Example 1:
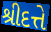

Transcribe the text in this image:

શ્રીદત્તે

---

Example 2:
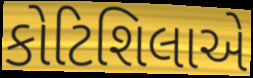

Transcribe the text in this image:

કોટિશિલાએ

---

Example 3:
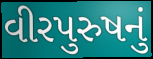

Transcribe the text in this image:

વીરપુરુષનું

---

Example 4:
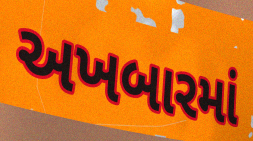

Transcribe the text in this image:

અખબારમાં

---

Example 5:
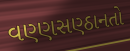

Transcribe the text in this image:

વણ્ણસણ્ઠાનતો